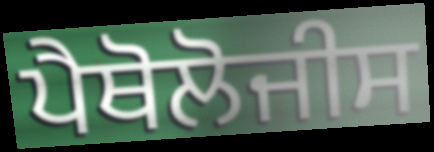
ਪੈਥੋਲੋਜੀਸ